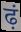
ढ़ं